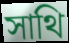
সাথি